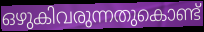
ഒഴുകിവരുന്നതുകൊണ്ട്